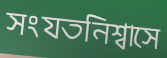
সংযতনিশ্বাসে